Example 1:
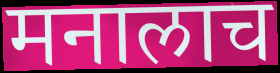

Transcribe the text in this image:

मनालाच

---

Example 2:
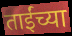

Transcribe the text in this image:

ताईंच्या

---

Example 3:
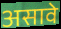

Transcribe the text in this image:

असावे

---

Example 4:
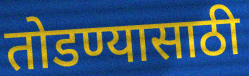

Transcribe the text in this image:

तोडण्यासाठी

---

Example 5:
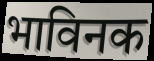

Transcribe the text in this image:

भाविनक